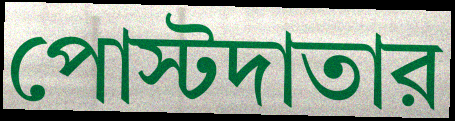
পোস্টদাতার